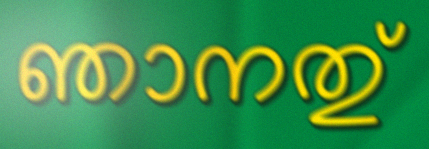
ഞാനതു്